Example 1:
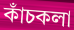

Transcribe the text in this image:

কাঁচকলা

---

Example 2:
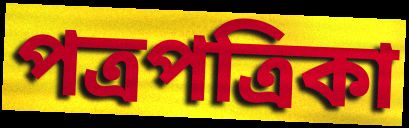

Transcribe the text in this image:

পত্রপত্রিকা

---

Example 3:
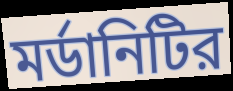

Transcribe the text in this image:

মর্ডানিটির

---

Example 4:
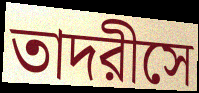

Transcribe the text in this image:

তাদরীসে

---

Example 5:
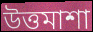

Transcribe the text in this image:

উত্তমাশা